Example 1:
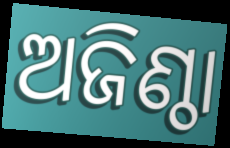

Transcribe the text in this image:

ଅଜିଣ୍ଠା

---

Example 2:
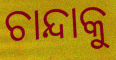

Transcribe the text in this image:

ଚାନ୍ଦାକୁ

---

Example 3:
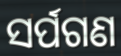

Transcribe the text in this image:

ସର୍ପଗଣ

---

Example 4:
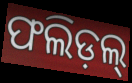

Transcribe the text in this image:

ଫଲିଡ଼ଲ୍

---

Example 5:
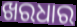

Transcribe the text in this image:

ଖରଧାର